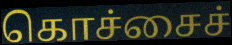
கொச்சைச்